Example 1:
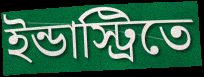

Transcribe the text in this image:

ইন্ডাস্ট্রিতে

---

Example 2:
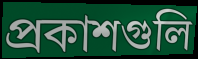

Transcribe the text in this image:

প্রকাশগুলি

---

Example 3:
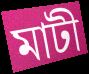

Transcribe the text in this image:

মাটী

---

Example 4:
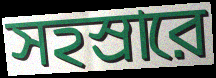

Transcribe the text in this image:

সহস্রারে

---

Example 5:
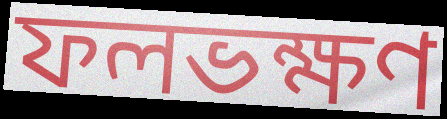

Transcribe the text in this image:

ফলভক্ষণ